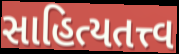
સાહિત્યતત્ત્વ